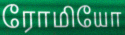
ரோமியோ